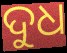
ଦୁଧ